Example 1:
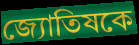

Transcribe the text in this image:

জ্যোতিষকে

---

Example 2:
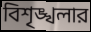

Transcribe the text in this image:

বিশৃঙ্খলার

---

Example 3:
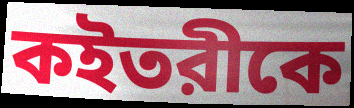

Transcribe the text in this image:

কইতরীকে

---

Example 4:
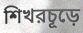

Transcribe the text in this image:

শিখরচূড়ে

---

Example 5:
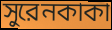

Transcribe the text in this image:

সুরেনকাকা